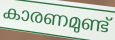
കാരണമുണ്ട്